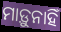
ମାଡ଼ୁନାହିଁ